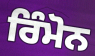
ਰਿੰਮੋਨ